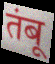
तंबू